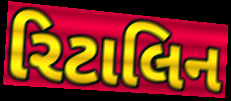
રિટાલિન